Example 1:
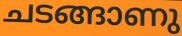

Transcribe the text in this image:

ചടങ്ങാണു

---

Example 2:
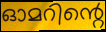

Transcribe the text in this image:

ഓമറിന്റെ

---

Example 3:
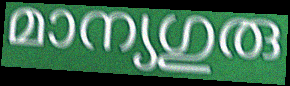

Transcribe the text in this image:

മാന്യഗുരു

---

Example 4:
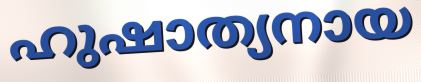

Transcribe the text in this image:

ഹുഷാത്യനായ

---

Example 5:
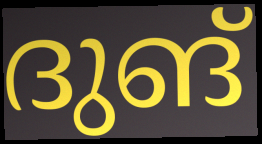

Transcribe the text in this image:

ദുങ്